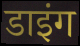
डाइंग